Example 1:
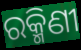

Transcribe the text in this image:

ରକ୍ମିଣୀ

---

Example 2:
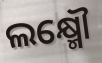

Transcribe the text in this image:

ଲକ୍ଷ୍ମୌ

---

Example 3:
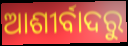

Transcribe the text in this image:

ଆଶୀର୍ବାଦରୁ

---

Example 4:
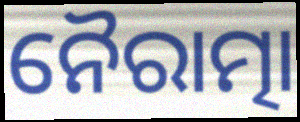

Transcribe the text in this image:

ନୈରାତ୍ମା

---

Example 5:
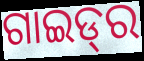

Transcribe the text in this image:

ଗାଇଡ୍‌ର